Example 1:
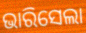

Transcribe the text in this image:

ଭାରିସେଲା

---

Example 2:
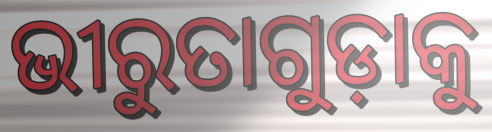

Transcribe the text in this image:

ଭୀରୁତାଗୁଡ଼ାକୁ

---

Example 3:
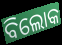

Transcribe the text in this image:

ବିଲୋକ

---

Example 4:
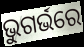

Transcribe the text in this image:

ଭୁଗର୍ଭରେ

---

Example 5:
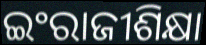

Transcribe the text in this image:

ଇଂରାଜୀଶିକ୍ଷା